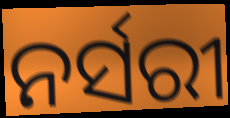
ନର୍ସରୀ